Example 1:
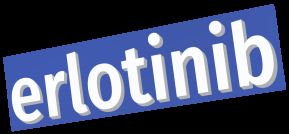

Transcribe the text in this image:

erlotinib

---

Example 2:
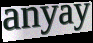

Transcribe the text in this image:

anyay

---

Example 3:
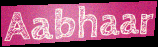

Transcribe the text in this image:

Aabhaar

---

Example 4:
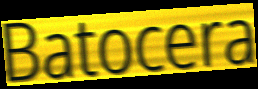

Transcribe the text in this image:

Batocera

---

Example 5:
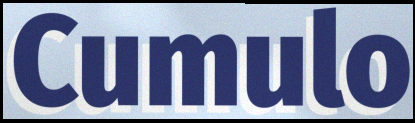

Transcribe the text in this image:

Cumulo